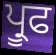
ਪ੍ਰੂਫ